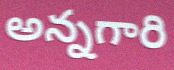
అన్నగారి